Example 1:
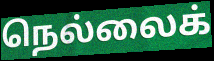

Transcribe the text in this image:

நெல்லைக்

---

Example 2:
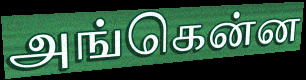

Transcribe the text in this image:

அங்கென்ன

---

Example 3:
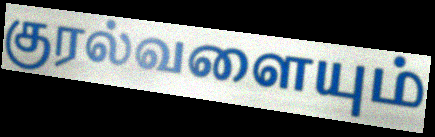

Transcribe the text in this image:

குரல்வளையும்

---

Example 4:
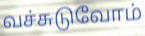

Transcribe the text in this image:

வச்சுடுவோம்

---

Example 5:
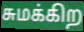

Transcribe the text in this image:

சுமக்கிற